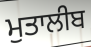
ਮੁਤਾਲੀਬ